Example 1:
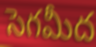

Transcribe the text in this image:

సెగమీద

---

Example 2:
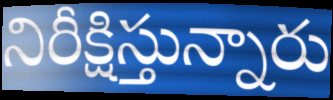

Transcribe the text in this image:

నిరీక్షిస్తున్నారు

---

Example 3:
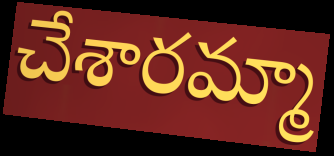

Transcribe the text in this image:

చేశారమ్మా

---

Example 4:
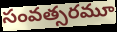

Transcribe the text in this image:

సంవత్సరమూ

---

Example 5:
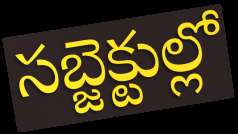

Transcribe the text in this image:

సబ్జెక్టుల్లో